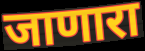
जाणारा